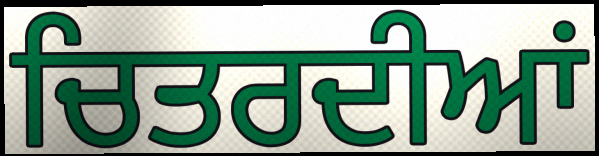
ਚਿਤਰਦੀਆਂ